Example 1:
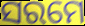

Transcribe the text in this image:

ସରମେ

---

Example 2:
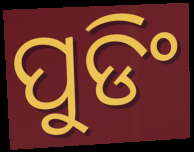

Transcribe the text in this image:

ପୁଡିଂ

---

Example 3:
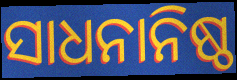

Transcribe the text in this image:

ସାଧନାନିଷ୍ଠ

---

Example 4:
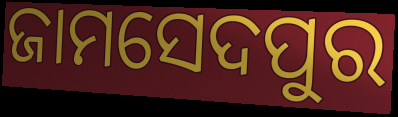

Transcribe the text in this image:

ଜାମସେଦପୁର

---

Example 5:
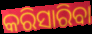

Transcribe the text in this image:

କରିସାରିବା